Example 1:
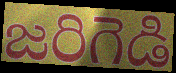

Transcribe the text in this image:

జరిగెడి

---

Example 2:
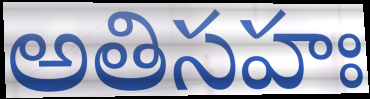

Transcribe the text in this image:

అతిసహః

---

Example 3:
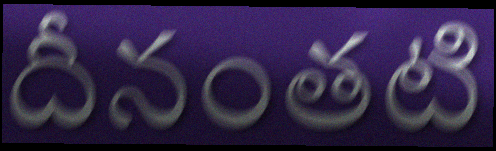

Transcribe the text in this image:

దీనంతటి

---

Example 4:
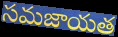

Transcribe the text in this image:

సమజాయత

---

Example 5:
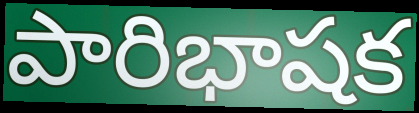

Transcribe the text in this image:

పారిభాషక